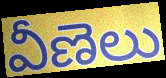
వీణెలు